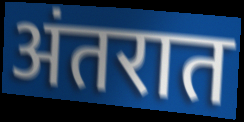
अंतरात